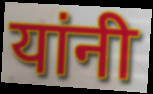
यांनी